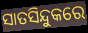
ସାତସିନ୍ଦୁକରେ